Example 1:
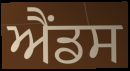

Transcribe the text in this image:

ਐਂਡਸ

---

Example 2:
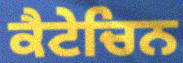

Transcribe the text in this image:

ਕੈਟੇਚਿਨ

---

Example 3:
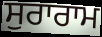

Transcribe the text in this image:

ਸੁਰਾਰਾਮ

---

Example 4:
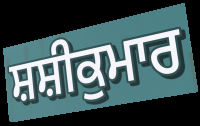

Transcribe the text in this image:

ਸ਼ਸ਼ੀਕੁਮਾਰ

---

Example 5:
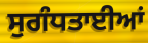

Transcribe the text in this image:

ਸੁਗੰਧਤਾਈਆਂ